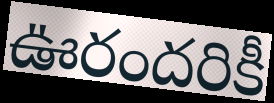
ఊరందరికీ